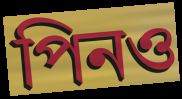
পিনও